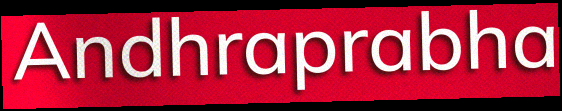
Andhraprabha